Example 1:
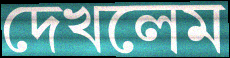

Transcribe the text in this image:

দেখলেম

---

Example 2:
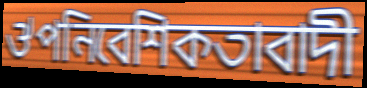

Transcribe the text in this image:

ঔপনিবেশিকতাবাদী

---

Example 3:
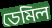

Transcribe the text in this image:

ডেমিল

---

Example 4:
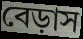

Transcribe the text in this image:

বেড়াস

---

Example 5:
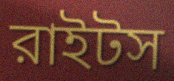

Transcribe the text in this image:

রাইটস